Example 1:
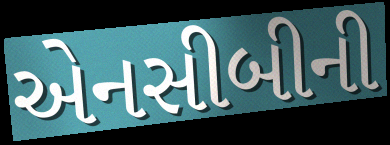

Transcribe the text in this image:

એનસીબીની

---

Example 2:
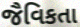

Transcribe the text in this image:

જૈવિકતા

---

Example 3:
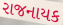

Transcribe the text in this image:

રાજનાયક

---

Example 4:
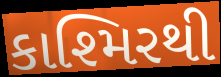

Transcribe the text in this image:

કાશ્મિરથી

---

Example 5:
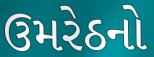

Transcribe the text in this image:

ઉમરેઠનો